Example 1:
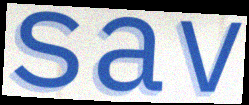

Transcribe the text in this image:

sav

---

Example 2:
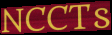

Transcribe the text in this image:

NCCTs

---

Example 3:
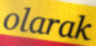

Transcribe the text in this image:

olarak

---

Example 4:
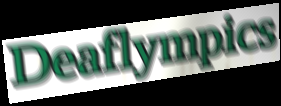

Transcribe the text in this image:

Deaflympics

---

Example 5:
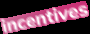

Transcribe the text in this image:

incentives